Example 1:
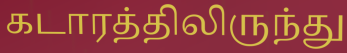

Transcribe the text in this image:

கடாரத்திலிருந்து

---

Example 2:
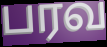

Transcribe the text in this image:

பரவ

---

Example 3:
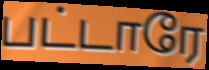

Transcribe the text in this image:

பட்டாரே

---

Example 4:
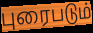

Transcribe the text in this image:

புரைபடும்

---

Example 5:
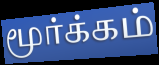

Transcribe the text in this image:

மூர்க்கம்